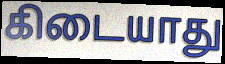
கிடையாது